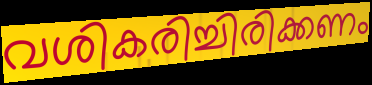
വശികരിച്ചിരിക്കണം